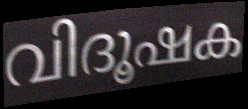
വിദൂഷക